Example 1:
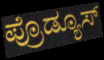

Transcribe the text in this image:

ಪ್ರೊಡ್ಯೂಸ್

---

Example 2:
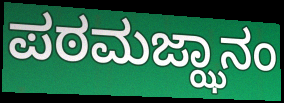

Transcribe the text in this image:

ಪಠಮಜ್ಝಾನಂ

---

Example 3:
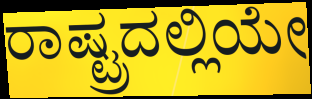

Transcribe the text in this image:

ರಾಷ್ಟ್ರದಲ್ಲಿಯೇ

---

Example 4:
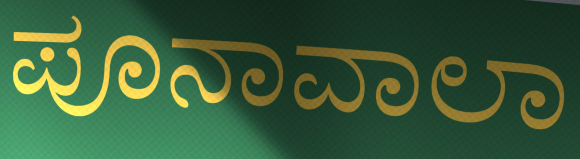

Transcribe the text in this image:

ಪೂನಾವಾಲಾ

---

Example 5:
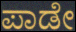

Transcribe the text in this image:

ಪಾಡೇ